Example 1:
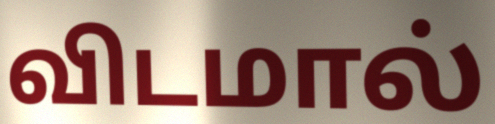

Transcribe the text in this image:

விடமால்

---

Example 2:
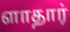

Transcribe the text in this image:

ளாதார்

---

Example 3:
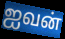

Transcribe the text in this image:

ஐவன்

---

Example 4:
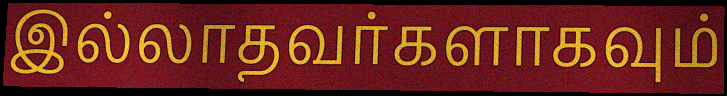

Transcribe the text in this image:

இல்லாதவர்களாகவும்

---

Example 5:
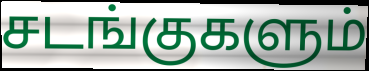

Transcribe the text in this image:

சடங்குகளும்